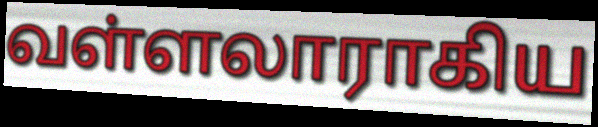
வள்ளலாராகிய